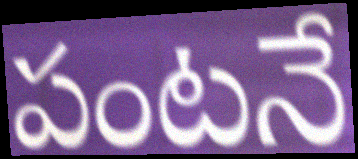
పంటనే